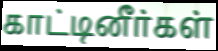
காட்டினீர்கள்